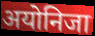
अयोनिजा